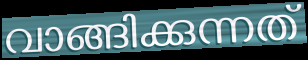
വാങ്ങിക്കുന്നത്